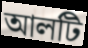
আলটি